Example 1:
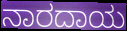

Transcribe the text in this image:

ನಾರದಾಯ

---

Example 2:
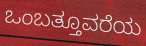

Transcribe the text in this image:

ಒಂಬತ್ತೂವರೆಯ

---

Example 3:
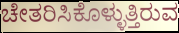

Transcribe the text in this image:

ಚೇತರಿಸಿಕೊಳ್ಳುತ್ತಿರುವ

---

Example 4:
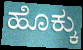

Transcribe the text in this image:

ಹೊಕ್ಕು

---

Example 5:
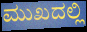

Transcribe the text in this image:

ಮುಖದಲ್ಲಿ